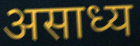
असाध्य